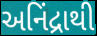
અનિંદ્રાથી